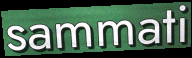
sammati